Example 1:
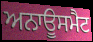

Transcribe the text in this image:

ਅਨਾਊਸਮੈਟ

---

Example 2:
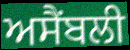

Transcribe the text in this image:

ਅਸੈਂਬਲੀ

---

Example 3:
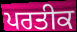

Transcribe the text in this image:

ਪਰਤੀਕ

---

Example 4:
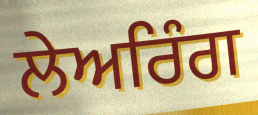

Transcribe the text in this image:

ਲੇਅਰਿੰਗ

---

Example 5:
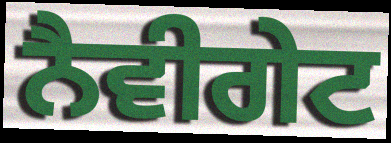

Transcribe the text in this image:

ਨੈਵੀਗੇਟ